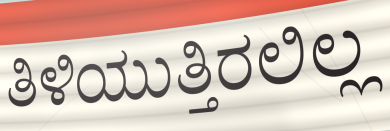
ತಿಳಿಯುತ್ತಿರಲಿಲ್ಲ